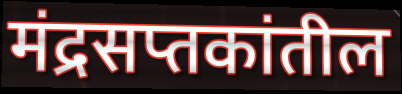
मंद्रसप्तकांतील